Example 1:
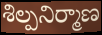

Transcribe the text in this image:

శిల్పనిర్మాణ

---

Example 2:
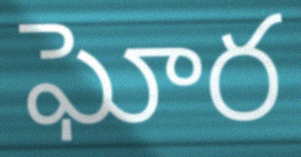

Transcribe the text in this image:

ఘోర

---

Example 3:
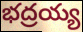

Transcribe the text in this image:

భద్రయ్య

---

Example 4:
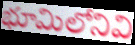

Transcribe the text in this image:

భూమిలోనివి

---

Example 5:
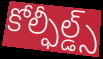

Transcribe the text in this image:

కోల్ఫీల్డ్స్